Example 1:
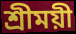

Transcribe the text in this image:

শ্রীময়ী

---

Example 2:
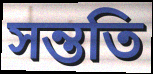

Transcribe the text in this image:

সন্ততি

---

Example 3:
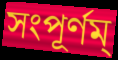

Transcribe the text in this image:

সংপূর্ণম্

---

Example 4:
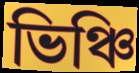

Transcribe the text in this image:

ভিঞ্চি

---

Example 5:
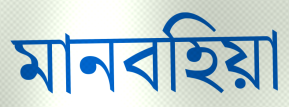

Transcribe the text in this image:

মানবহিয়া